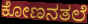
ಕೋಣನತಲೆ